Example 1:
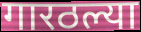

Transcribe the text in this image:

गारठल्या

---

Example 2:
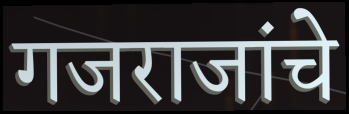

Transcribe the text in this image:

गजराजांचे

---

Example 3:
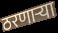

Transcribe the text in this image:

ठरणाऱ्या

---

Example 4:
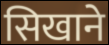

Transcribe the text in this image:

सिखाने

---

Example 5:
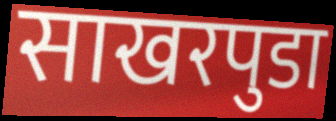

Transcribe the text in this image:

साखरपुडा